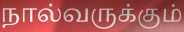
நால்வருக்கும்